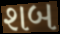
શબ